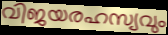
വിജയരഹസ്യവും